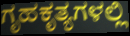
ಗೃಹಕೃತ್ಯಗಳಲ್ಲಿ